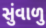
સુંવાળુ